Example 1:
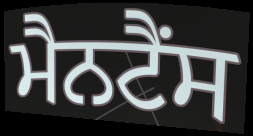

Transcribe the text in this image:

ਮੈਨਟੈਂਸ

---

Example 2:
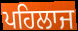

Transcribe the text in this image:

ਪਹਿਲਾਜ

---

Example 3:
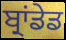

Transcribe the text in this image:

ਬ੍ਰਾਂਡੇਡ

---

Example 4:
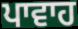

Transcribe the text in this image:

ਪਾਵਾਹ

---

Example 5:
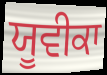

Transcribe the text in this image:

ਯੂਵੀਕਾ